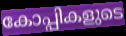
കോപ്പികളുടെ